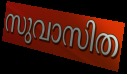
സുവാസിത